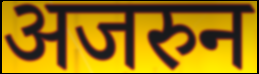
अजरुन